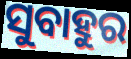
ସୁବାହୁର